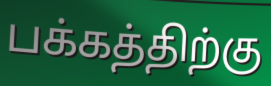
பக்கத்திற்கு